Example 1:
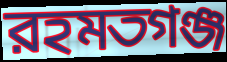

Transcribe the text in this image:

রহমতগঞ্জ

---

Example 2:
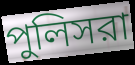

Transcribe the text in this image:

পুলিসরা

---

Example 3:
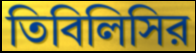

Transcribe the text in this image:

তিবিলিসির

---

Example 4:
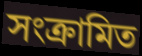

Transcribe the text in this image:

সংক্রামিত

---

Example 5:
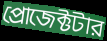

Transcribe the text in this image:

প্রোজেক্টটার